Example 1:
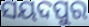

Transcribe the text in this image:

ସୟଦପୁର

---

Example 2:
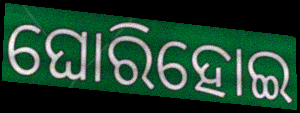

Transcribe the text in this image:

ଘୋରିହୋଇ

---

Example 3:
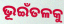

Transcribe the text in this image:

ଭୂଇଁତଳକୁ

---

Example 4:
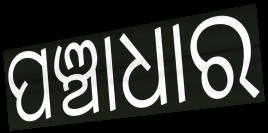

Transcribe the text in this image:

ପଞ୍ଚାଧାର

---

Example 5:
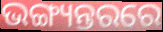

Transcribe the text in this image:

ଭଙ୍ଗ୍ୟନ୍ତରରେ